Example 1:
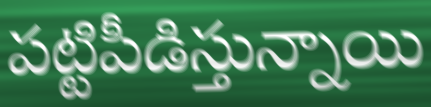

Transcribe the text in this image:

పట్టిపీడిస్తున్నాయి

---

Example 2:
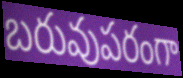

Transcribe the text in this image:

బరువుపరంగా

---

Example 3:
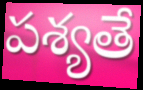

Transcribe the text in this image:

పశ్యతే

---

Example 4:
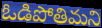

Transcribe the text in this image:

ఓడిపోతిమని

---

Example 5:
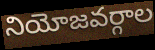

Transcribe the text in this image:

నియోజవర్గాల